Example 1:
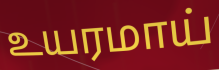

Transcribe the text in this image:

உயரமாய்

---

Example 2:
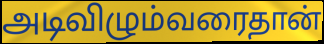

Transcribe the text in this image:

அடிவிழும்வரைதான்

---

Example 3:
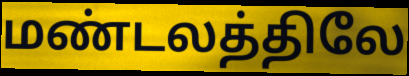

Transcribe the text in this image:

மண்டலத்திலே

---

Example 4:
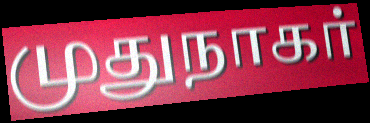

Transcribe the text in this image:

முதுநாகர்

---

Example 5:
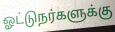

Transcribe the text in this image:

ஓட்டுநர்களுக்கு